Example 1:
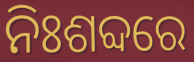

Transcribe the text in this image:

ନିଃଶବ୍ଦରେ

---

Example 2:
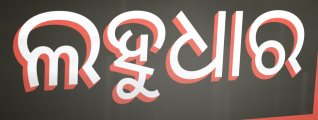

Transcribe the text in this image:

ଲହୁଧାର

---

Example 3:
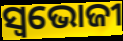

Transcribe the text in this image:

ସ୍ବଭୋଜୀ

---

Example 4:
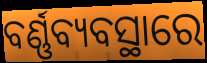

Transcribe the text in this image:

ବର୍ଣ୍ଣବ୍ୟବସ୍ଥାରେ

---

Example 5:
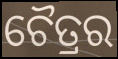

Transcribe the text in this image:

ଚୈତ୍ରର